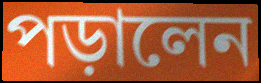
পড়ালেন